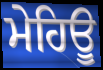
ਮੇਹਿਊ